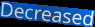
Decreased